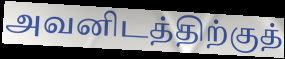
அவனிடத்திற்குத்